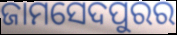
ଜାମସେଦପୁରର